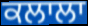
ਕਲਾਲਾ